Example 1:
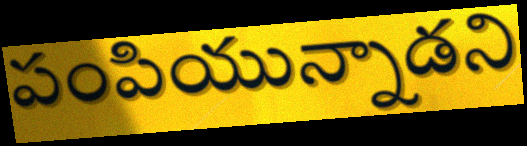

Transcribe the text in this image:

పంపియున్నాడని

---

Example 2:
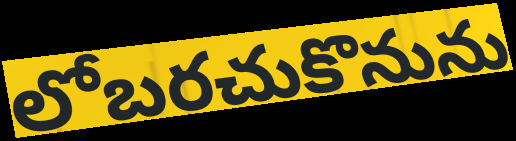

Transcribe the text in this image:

లోబరచుకొనును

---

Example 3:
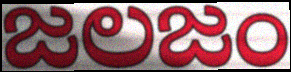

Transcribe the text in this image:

జలజం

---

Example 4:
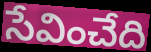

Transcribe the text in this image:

సేవించేది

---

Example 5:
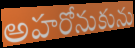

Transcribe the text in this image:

అహరోనుకును